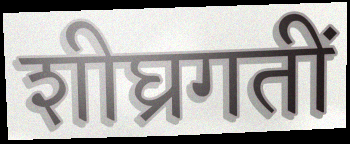
शीघ्रगतीं